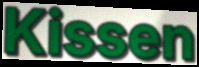
Kissen